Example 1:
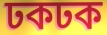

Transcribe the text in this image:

ঢকঢক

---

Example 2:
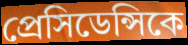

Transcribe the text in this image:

প্রেসিডেন্সিকে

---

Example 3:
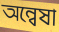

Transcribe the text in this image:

অন্বেষা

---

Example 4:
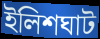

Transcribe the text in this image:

ইলিশঘাট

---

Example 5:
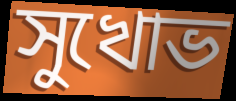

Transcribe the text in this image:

সুখোভ